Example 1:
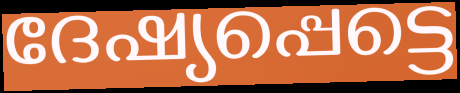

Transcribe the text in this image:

ദേഷ്യപ്പെട്ടെ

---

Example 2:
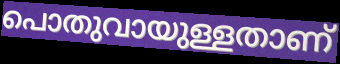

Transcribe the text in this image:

പൊതുവായുള്ളതാണ്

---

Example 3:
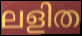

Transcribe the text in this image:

ലളിത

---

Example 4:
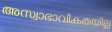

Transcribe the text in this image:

അസ്വാഭാവികതയില്ല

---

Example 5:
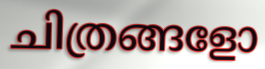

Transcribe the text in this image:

ചിത്രങ്ങളോ